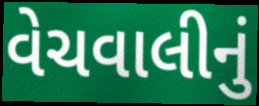
વેચવાલીનું